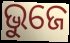
ଭୁଜେ